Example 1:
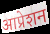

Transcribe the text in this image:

आप्रेशन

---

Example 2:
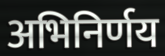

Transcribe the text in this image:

अभिनिर्णय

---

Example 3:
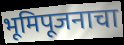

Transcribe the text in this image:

भूमिपूजनाचा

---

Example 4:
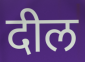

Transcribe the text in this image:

दील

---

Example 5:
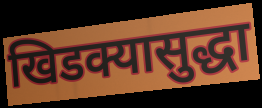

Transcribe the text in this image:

खिडक्यासुद्धा